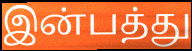
இன்பத்து